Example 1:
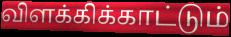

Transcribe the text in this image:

விளக்கிக்காட்டும்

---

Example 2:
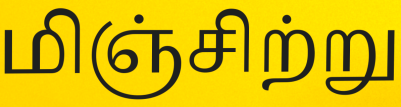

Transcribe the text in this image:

மிஞ்சிற்று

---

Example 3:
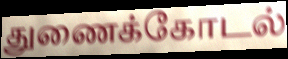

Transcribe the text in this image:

துணைக்கோடல்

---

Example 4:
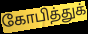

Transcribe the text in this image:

கோபித்துக்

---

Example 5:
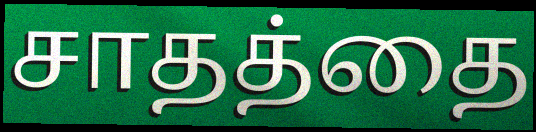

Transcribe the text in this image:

சாதத்தை